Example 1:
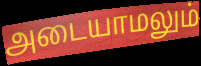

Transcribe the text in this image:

அடையாமலும்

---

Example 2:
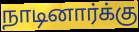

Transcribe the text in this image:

நாடினார்க்கு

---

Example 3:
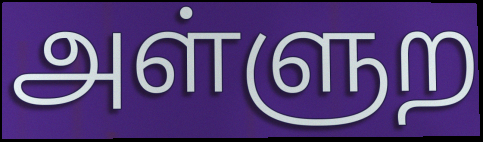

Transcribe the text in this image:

அள்ளுற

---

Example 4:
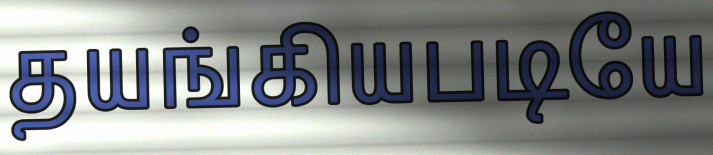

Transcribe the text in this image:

தயங்கியபடியே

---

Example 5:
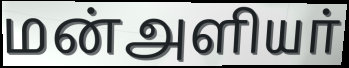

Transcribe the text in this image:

மன்அளியர்